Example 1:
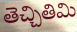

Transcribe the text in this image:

తెచ్చితిమి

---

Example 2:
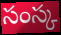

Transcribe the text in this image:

సంస్క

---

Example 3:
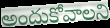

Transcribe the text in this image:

అందుకోవాలని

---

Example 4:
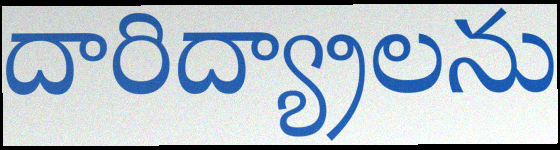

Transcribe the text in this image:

దారిద్య్రాలను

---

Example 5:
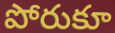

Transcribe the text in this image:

పోరుకూ